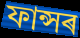
ফান্সৰ